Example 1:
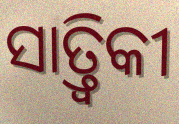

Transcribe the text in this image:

ସାତ୍ତ୍ୱିକୀ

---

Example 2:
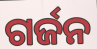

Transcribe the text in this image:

ଗର୍ଜନ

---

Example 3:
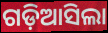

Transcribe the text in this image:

ଗଡ଼ିଆସିଲା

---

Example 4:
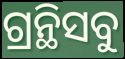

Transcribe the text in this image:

ଗ୍ରନ୍ଥିସବୁ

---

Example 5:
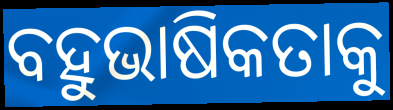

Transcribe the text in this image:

ବହୁଭାଷିକତାକୁ